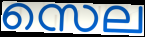
സെല